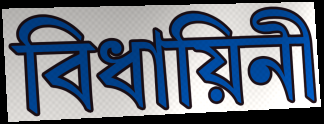
বিধায়িনী